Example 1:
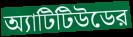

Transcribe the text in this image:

অ্যাটিটিউডের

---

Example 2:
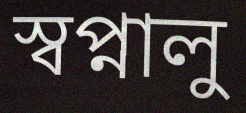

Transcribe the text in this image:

স্বপ্নালু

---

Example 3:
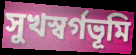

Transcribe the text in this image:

সুখস্বর্গভূমি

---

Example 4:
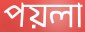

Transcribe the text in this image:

পয়লা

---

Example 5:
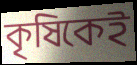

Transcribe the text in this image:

কৃষিকেই